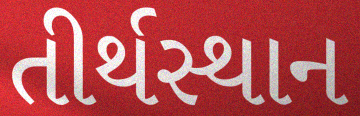
તીર્થસ્થાન